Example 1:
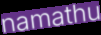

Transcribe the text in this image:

namathu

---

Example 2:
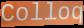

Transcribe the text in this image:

Colloq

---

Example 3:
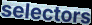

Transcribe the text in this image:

selectors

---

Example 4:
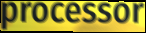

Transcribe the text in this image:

processor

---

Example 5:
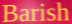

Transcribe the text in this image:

Barish